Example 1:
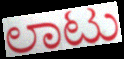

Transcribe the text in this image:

ಲಾಟು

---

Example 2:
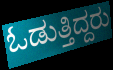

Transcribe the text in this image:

ಓಡುತ್ತಿದ್ದರು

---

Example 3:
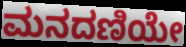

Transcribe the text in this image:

ಮನದಣಿಯೇ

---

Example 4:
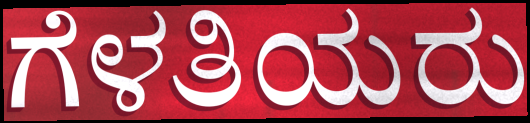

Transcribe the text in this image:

ಗೆಳತಿಯರು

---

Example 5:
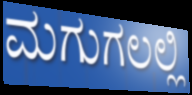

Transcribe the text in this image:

ಮಗುಗಲಲ್ಲಿ